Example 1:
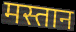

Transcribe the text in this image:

मस्तान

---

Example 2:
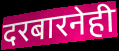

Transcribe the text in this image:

दरबारनेही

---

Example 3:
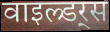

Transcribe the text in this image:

वाइल्डर्स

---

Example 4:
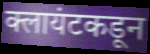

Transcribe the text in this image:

क्लायंटकडून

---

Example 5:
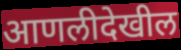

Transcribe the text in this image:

आणलीदेखील